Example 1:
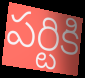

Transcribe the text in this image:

పర్టికి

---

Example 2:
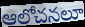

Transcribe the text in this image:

ఆలోచనలూ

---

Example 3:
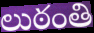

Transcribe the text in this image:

లుఠంతి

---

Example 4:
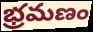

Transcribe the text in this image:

భ్రమణం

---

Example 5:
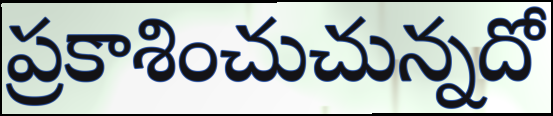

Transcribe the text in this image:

ప్రకాశించుచున్నదో